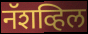
नॅशव्हिल